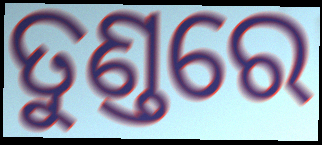
ତୁଣ୍ଡରେ